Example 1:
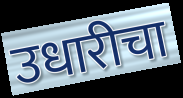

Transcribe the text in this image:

उधारीचा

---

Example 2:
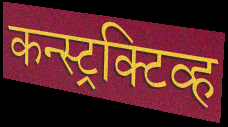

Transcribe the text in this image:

कन्स्ट्रक्टिव्ह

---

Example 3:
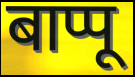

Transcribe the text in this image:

बाप्पू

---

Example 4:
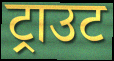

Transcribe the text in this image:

ट्राउट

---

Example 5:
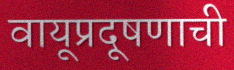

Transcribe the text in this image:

वायूप्रदूषणाची